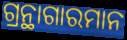
ଗ୍ରନ୍ଥାଗାରମାନ